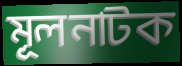
মূলনাটক